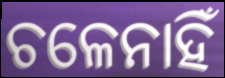
ଚଳେନାହିଁ